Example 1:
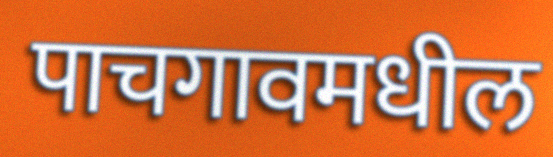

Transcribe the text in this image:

पाचगावमधील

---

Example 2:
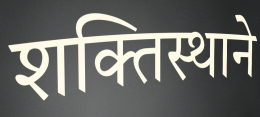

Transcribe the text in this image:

शक्तिस्थाने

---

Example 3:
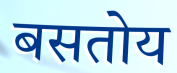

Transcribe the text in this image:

बसतोय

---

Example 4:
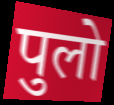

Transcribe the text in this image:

पुलो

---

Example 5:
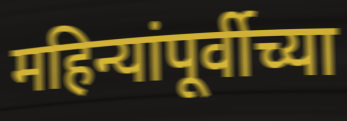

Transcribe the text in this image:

महिन्यांपूर्वीच्या